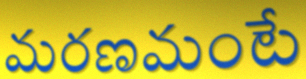
మరణమంటే